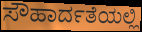
ಸೌಹಾರ್ದತೆಯಲ್ಲಿ